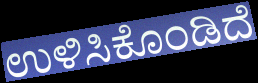
ಉಳಿಸಿಕೊಂಡಿದೆ